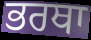
ਭਰਥਾ